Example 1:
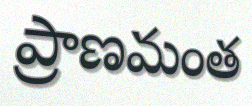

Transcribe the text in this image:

ప్రాణమంత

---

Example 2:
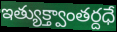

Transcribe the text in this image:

ఇత్యుక్త్వాంతర్దధే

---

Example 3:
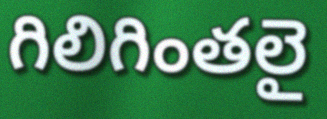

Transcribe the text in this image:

గిలిగింతలై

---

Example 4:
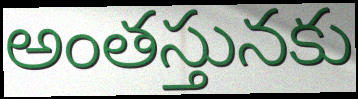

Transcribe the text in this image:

అంతస్తునకు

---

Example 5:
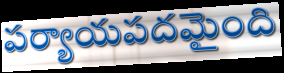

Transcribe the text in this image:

పర్యాయపదమైంది